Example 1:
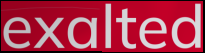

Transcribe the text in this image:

exalted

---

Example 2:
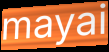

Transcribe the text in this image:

mayai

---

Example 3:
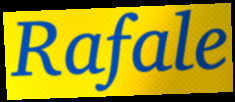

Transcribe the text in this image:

Rafale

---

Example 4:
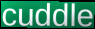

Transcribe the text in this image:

cuddle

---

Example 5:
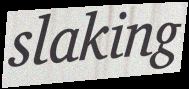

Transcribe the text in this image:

slaking